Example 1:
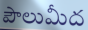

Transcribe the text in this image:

పౌలుమీద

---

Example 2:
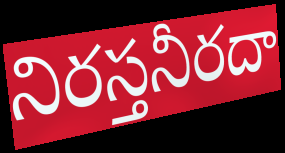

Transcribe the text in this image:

నిరస్తనీరదా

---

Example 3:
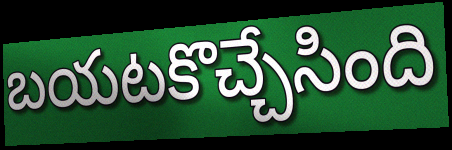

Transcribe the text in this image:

బయటకొచ్చేసింది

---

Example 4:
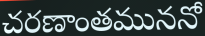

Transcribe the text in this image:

చరణాంతముననో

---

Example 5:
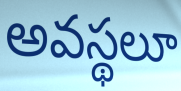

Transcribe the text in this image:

అవస్థలూ